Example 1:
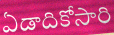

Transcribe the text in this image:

ఏడాదికోసారి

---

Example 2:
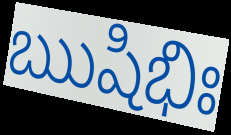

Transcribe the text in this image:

ఋషిభిః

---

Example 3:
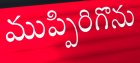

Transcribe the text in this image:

ముప్పిరిగొను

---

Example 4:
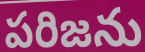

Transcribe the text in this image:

పరిజను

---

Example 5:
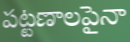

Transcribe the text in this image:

పట్టణాలపైనా